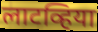
लाटव्हिया